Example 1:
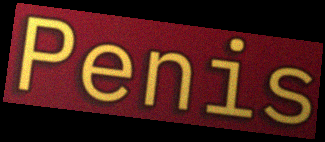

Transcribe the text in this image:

Penis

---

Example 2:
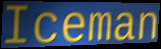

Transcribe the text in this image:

Iceman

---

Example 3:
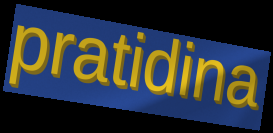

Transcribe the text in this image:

pratidina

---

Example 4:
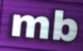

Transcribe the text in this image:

mb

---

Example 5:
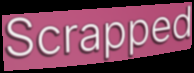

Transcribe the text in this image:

Scrapped